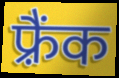
फ़्रैंक